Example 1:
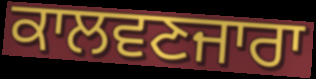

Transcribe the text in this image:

ਕਾਲਵਣਜਾਰਾ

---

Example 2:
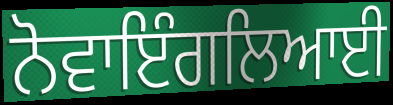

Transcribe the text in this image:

ਨੋਵਾਇੰਗਲਿਆਈ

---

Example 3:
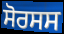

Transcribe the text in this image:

ਸੋਰਸਸ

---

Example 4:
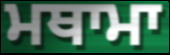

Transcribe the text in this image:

ਮਥਾਮਾ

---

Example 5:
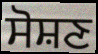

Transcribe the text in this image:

ਸੋਸ਼ਣ